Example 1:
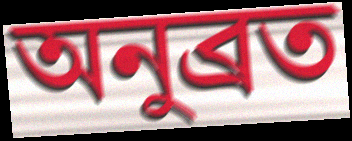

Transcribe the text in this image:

অনুব্রত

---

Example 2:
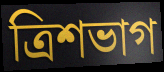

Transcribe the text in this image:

ত্রিশভাগ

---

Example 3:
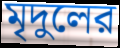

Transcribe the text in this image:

মৃদুলের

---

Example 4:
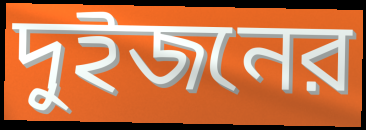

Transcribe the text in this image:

দুইজনের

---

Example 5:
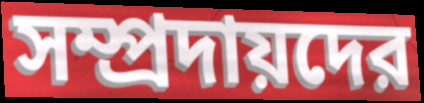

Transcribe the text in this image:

সম্প্রদায়দের